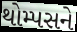
થોમ્પસને